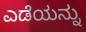
ಎಡೆಯನ್ನು